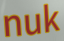
nuk